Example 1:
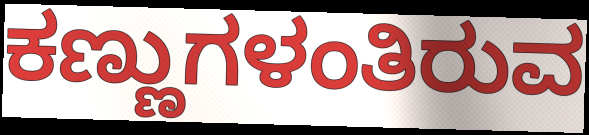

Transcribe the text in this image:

ಕಣ್ಣುಗಳಂತಿರುವ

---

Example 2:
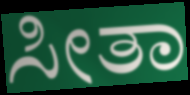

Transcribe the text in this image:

ಸೀತಾ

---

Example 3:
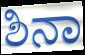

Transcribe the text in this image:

ಶಿನಾ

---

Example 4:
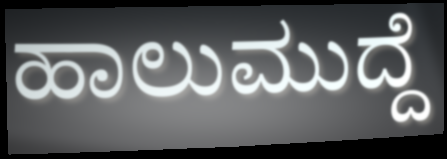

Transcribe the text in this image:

ಹಾಲುಮುದ್ದೆ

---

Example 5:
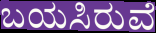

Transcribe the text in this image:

ಬಯಸಿರುವೆ